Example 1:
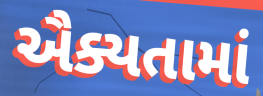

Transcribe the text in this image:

ઐક્યતામાં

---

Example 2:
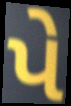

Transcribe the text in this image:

પે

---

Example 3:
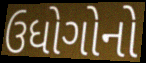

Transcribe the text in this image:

ઉધોગોનો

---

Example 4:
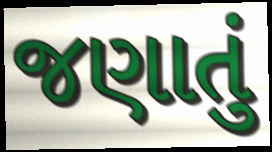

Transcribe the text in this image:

જણાતું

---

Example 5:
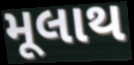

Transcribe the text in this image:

મૂલાથ